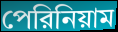
পেরিনিয়াম